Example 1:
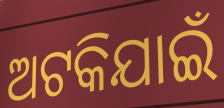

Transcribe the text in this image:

ଅଟକିଯାଇଁ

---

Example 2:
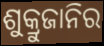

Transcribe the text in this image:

ଶୁକ୍ରୁଜାନିର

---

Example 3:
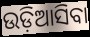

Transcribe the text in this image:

ଉଡ଼ିଆସିବା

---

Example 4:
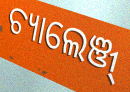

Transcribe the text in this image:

ଚ୍ୟାଲେଞ୍ଜ୍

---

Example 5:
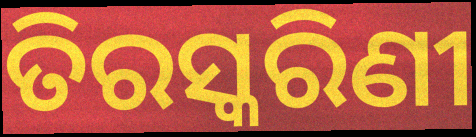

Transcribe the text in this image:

ତିରସ୍କରିଣୀ